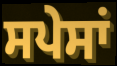
ਸਪੇਸਾਂ